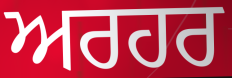
ਅਰਹਰ